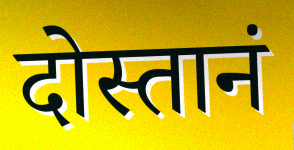
दोस्तानं